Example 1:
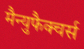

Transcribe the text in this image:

मैन्युफैक्चर्स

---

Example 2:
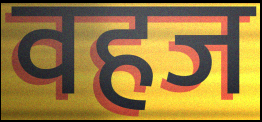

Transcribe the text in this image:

वहज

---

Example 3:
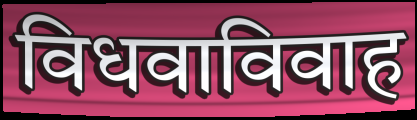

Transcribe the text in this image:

विधवाविवाह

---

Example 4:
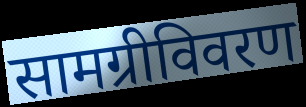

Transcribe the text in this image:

सामग्रीविवरण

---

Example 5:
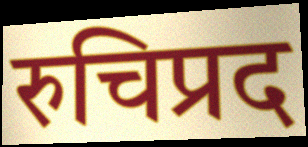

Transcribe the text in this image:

रुचिप्रद